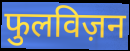
फुलविज़न